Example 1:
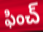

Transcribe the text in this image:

ఫించ్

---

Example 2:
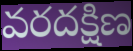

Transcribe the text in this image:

వరదక్షిణ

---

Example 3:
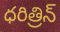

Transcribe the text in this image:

ధరిత్రిన్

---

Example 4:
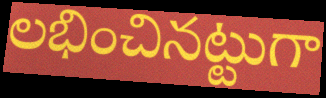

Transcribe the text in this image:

లభించినట్టుగా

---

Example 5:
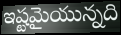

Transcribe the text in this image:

ఇష్టమైయున్నది